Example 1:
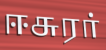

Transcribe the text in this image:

ஈசுரர்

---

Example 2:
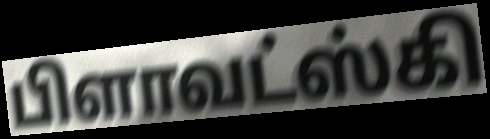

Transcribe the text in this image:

பிளாவட்ஸ்கி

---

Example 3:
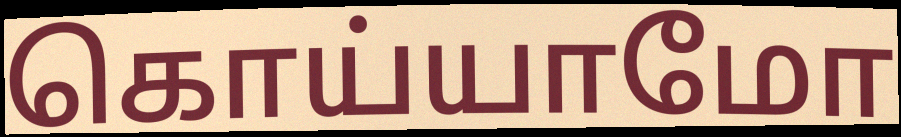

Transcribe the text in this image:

கொய்யாமோ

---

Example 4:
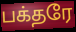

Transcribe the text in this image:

பக்தரே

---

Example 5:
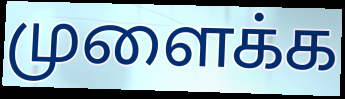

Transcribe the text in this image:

முளைக்க